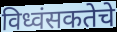
विध्वंसकतेचे